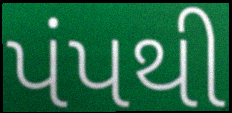
પંપથી